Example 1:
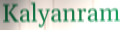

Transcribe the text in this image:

Kalyanram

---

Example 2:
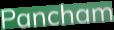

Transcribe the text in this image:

Pancham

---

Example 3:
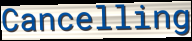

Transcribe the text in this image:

Cancelling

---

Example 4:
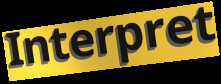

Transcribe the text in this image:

Interpret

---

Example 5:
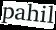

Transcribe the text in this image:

pahil